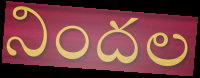
నిందల